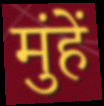
मुंहें